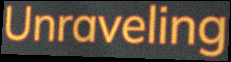
Unraveling